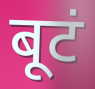
बूटं